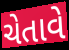
ચેતાવે